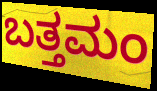
ಬತ್ತಮಂ